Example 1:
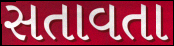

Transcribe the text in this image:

સતાવતા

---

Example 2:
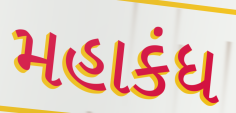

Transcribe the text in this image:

મહાકંધ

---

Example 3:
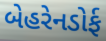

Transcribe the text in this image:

બેહરેનડોર્ફ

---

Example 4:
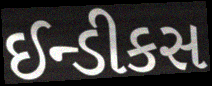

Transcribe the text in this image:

ઈન્ડીકસ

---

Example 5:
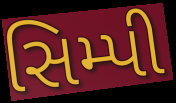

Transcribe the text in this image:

સિમ્પી